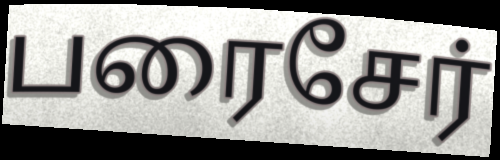
பரைசேர்